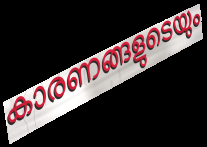
കാരണങ്ങളുടെയും